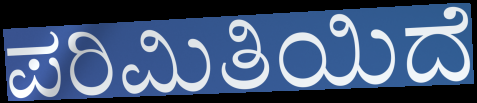
ಪರಿಮಿತಿಯಿದೆ